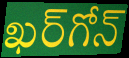
ఖర్‌గోన్